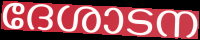
ദേശാടന